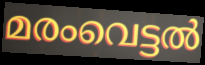
മരംവെട്ടൽ